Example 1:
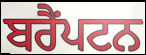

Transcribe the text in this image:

ਬਰੈਂਪਟਨ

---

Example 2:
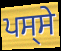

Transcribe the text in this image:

ਪਸ੍ਸੇ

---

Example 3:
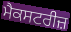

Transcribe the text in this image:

ਮੈਕਸਟਰੀਜ਼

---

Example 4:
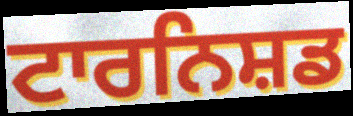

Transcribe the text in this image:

ਟਾਰਨਿਸ਼ਡ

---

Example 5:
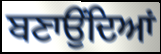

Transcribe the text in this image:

ਬਣਾਉਂਦਿਆਂ